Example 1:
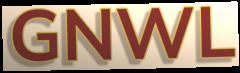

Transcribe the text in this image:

GNWL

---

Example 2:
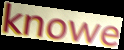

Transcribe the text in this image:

knowe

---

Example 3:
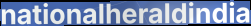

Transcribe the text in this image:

nationalheraldindia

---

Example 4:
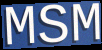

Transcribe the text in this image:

MSM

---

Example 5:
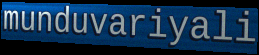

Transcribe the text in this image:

munduvariyali